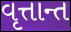
વૃત્તાન્ત